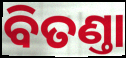
ବିତଣ୍ତା